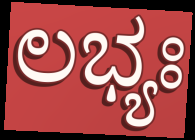
ಲಭ್ಯಃ